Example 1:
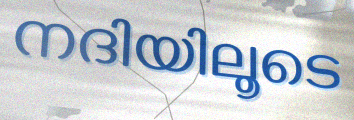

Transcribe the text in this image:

നദിയിലൂടെ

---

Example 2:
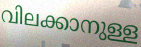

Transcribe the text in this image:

വിലക്കാനുള്ള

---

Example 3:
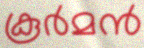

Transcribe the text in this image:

കൂർമൻ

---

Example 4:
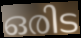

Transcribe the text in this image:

ഒരിട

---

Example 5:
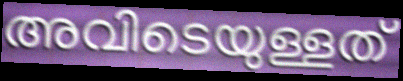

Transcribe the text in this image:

അവിടെയുള്ളത്